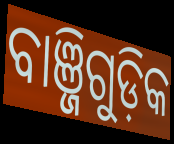
ବାଞ୍ଜିଗୁଡ଼ିକ